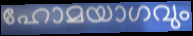
ഹോമയാഗവും